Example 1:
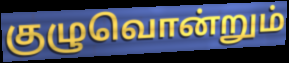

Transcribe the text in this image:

குழுவொன்றும்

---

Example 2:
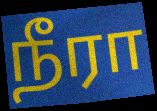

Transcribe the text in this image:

நீரா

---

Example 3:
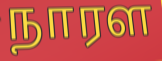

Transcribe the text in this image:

நாரள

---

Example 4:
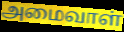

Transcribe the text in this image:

அமைவாள்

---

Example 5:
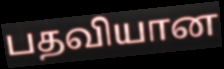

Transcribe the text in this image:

பதவியான